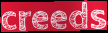
creeds